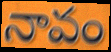
నావం